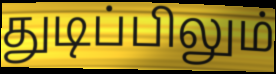
துடிப்பிலும்